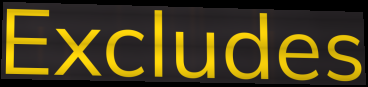
Excludes